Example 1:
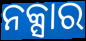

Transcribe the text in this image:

ନକ୍ସାର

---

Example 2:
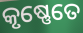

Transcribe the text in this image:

କୃଷ୍ଣେତେ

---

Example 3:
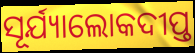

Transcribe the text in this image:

ସୂର୍ଯ୍ୟାଲୋକଦୀପ୍ତ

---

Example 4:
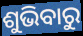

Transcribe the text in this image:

ଶୁଭିବାରୁ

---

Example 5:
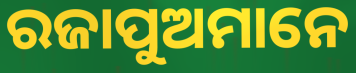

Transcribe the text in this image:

ରଜାପୁଅମାନେ